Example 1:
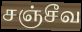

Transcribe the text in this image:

சஞ்சீவ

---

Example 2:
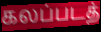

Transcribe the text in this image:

கலப்படத்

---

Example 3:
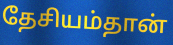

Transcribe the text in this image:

தேசியம்தான்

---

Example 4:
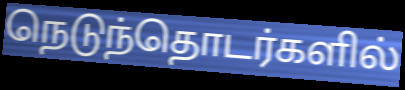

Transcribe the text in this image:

நெடுந்தொடர்களில்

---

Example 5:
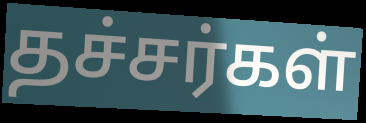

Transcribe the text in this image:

தச்சர்கள்